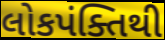
લોકપંક્તિથી